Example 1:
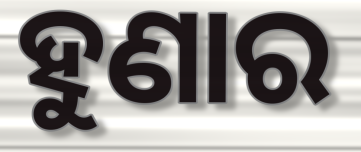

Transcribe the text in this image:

ହୁଣାର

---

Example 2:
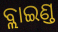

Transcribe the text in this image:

ବ୍ଲାଇଣ୍ଡ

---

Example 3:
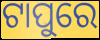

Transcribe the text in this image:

ଟାପୁରେ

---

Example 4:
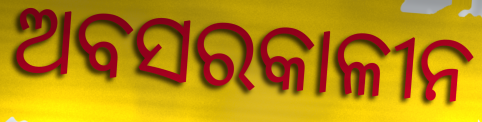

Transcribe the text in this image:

ଅବସରକାଳୀନ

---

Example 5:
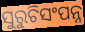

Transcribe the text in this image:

ସୁରୁଚିସଂପନ୍ନ